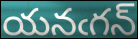
యనఁగన్